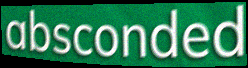
absconded